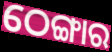
ଠେଙ୍ଗାର